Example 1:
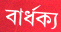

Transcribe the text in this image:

বার্ধক্য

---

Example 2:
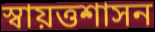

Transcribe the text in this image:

স্বায়ত্তশাসন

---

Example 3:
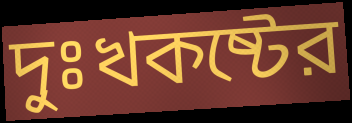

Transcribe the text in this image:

দুঃখকষ্টের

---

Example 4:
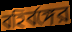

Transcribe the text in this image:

বহির্বঙ্গের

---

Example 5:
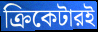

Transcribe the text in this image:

ক্রিকেটারই